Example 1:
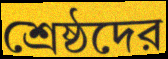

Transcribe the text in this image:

শ্রেষ্ঠদের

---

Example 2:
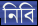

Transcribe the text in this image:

নিবি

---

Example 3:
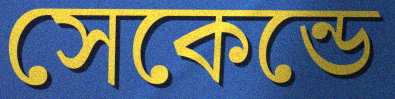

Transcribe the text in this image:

সেকেন্ডে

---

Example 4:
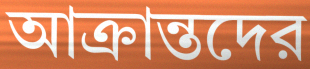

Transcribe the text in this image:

আক্রান্তদের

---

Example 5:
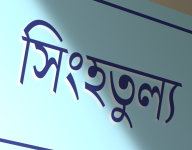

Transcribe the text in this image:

সিংহতুল্য